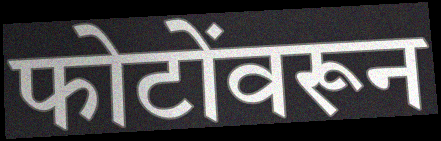
फोटोंवरून